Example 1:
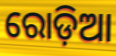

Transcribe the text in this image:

ରୋଡ଼ିଆ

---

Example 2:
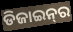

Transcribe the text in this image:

ଡିଜାଇନ୍‌ର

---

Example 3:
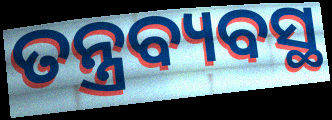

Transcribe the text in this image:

ତନ୍ତ୍ରବ୍ୟବସ୍ଥ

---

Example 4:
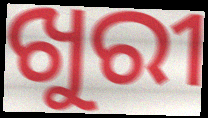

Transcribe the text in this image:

ଖୁରୀ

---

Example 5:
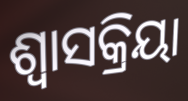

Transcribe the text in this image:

ଶ୍ବାସକ୍ରିୟା